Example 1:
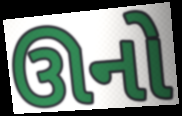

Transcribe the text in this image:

ઊનો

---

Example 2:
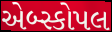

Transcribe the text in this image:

એબ્સ્કોપલ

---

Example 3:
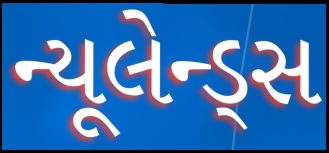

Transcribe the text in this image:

ન્યૂલેન્ડ્સ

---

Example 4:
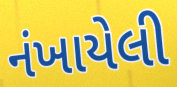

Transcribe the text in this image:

નંખાયેલી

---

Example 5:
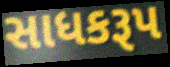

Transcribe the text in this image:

સાધકરૂપ